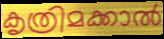
കൃത്രിമക്കാൽ